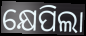
କ୍ଷେପିଲା